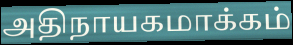
அதிநாயகமாக்கம்